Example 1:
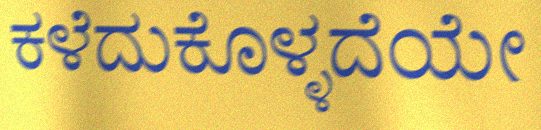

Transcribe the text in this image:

ಕಳೆದುಕೊಳ್ಳದೆಯೇ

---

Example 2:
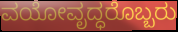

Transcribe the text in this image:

ವಯೋವೃದ್ಧರೊಬ್ಬರು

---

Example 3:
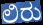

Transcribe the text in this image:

ಲಿರು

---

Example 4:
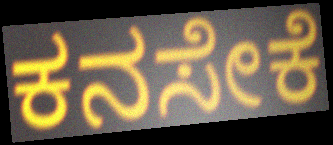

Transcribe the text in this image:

ಕನಸೇಕೆ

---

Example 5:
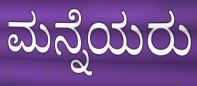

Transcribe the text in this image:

ಮನ್ನೆಯರು